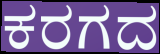
ಕರಗದ